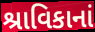
શ્રાવિકાનાં